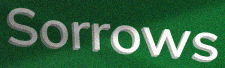
Sorrows